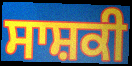
ਸਾਸ਼ਕੀ